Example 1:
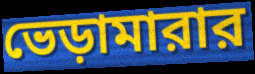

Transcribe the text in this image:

ভেড়ামারার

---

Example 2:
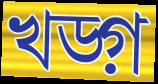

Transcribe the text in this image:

খড়্গ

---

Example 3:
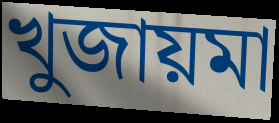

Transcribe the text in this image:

খুজায়মা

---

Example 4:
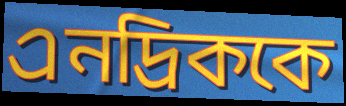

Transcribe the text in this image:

এনদ্রিককে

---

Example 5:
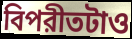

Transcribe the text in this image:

বিপরীতটাও